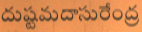
దుష్టమదాసురేంద్ర